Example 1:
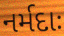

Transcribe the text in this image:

નર્મદાઃ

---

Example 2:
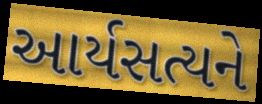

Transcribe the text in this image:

આર્યસત્યને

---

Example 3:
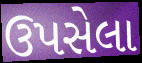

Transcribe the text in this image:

ઉપસેલા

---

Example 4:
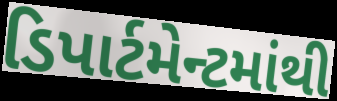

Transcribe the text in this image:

ડિપાર્ટમેન્ટમાંથી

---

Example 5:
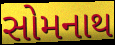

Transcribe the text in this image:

સોમનાથ